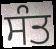
ਸੰਤ